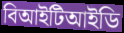
বিআইটিআইডি